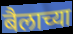
बैलाच्या